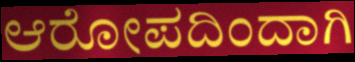
ಆರೋಪದಿಂದಾಗಿ